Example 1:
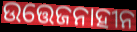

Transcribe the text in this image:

ଉତ୍ତେଜନାହୀନ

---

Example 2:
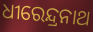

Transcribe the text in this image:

ଧୀରେନ୍ଦ୍ରନାଥ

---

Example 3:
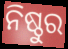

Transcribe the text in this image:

ନିଷ୍ଠୁର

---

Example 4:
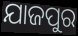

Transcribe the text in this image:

ଯାଜପୁର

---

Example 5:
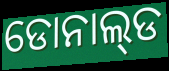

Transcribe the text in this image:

ଡୋନାଲ୍‌ଡ